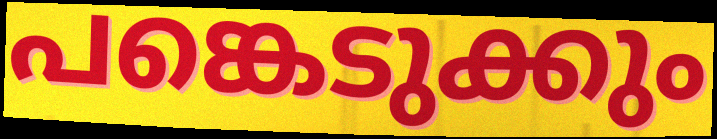
പങ്കെടുക്കും